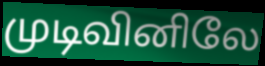
முடிவினிலே